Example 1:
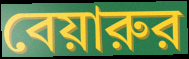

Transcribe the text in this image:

বেয়ারুর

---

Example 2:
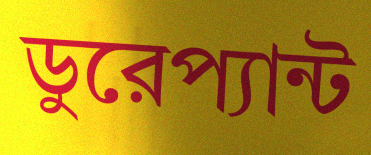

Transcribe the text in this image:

ডুরেপ্যান্ট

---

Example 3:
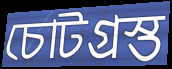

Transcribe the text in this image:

চোটগ্রস্ত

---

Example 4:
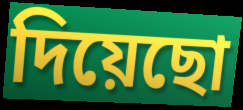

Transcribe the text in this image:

দিয়েছো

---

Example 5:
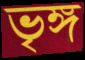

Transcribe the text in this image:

ভৃঙ্গ